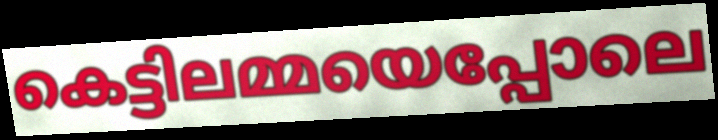
കെട്ടിലമ്മയെപ്പോലെ